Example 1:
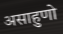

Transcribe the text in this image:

असाहुणो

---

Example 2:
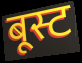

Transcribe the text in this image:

बूस्ट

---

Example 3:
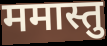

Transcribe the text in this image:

ममास्तु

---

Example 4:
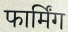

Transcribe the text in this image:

फार्मिंग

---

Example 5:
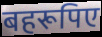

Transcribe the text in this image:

बहरूपिए